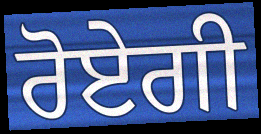
ਰੋਏਗੀ